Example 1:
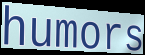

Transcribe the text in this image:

humors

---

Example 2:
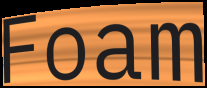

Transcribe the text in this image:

Foam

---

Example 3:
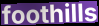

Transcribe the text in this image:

foothills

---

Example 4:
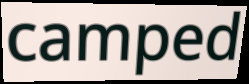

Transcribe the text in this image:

camped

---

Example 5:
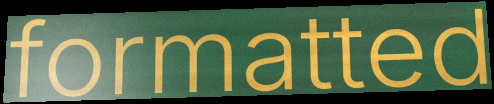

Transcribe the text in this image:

formatted